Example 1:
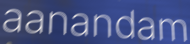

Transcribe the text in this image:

aanandam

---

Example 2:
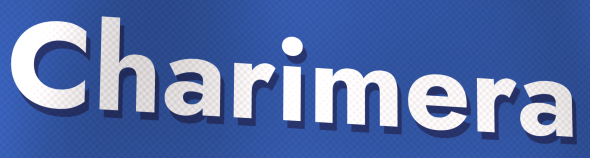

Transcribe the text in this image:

Charimera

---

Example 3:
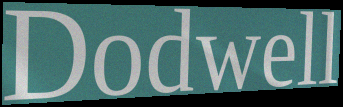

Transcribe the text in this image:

Dodwell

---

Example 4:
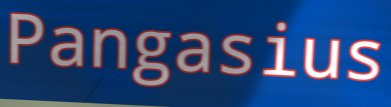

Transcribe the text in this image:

Pangasius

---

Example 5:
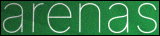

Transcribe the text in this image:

arenas